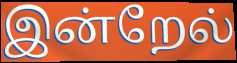
இன்றேல்